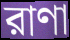
রাণা